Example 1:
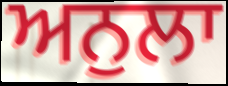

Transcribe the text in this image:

ਅਨੁਲਾ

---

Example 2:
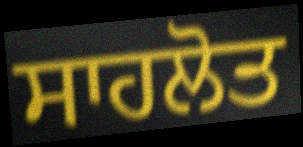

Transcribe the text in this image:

ਸਾਹਲੋਤ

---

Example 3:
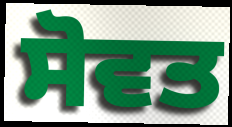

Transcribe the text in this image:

ਸੋਵਤ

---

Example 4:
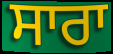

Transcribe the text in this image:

ਸਾਰਾ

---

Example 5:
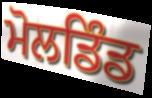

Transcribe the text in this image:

ਮੋਲਡਿੰਡ